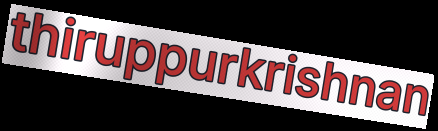
thiruppurkrishnan